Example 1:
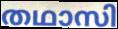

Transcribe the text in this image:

തഥാസി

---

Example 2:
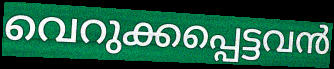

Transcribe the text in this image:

വെറുക്കപ്പെട്ടവൻ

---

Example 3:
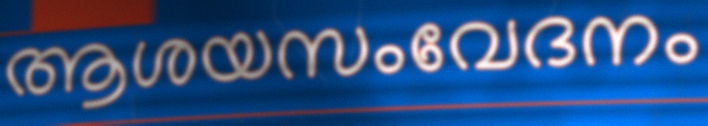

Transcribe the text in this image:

ആശയസംവേദനം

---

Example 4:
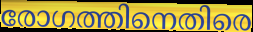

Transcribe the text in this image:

രോഗത്തിനെതിരെ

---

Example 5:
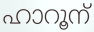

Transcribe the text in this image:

ഹാറൂന്